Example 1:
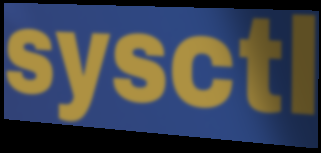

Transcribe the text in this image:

sysctl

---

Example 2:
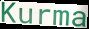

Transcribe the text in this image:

Kurma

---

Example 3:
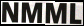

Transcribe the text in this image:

NMML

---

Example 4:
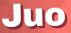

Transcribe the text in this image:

Juo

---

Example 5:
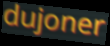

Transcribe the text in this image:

dujoner